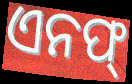
ଏନଫ୍